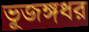
ভূজঙ্গধর